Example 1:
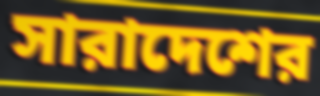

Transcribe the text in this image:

সারাদেশের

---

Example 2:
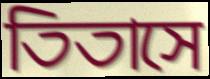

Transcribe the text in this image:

তিতাসে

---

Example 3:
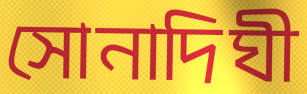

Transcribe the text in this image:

সোনাদিঘী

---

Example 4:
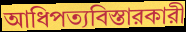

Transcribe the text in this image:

আধিপত্যবিস্তারকারী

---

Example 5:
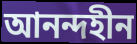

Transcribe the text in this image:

আনন্দহীন